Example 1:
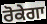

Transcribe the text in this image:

ਰੋਕੇਗਾ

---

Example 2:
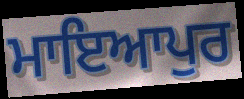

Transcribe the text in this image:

ਮਾਇਆਪੁਰ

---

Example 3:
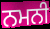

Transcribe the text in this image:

ਨਮਨੀ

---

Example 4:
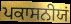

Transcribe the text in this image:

ਪਕਾਸਨੀਯਂ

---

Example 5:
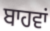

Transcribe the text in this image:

ਬਾਹਵਾਂ